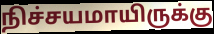
நிச்சயமாயிருக்கு